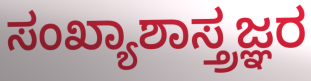
ಸಂಖ್ಯಾಶಾಸ್ತ್ರಜ್ಞರ